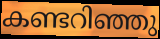
കണ്ടറിഞ്ഞു